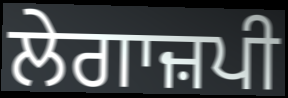
ਲੇਗਾਜ਼ਪੀ